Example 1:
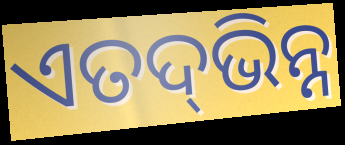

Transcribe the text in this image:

ଏତଦ୍‍ଭିନ୍ନ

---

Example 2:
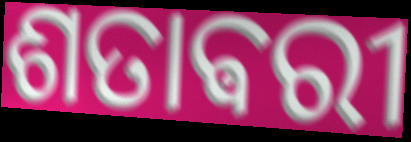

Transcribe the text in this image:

ଶତାଵରୀ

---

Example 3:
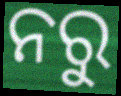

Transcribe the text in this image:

ନରୁ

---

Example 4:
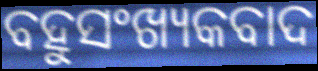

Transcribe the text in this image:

ବହୁସଂଖ୍ୟକବାଦ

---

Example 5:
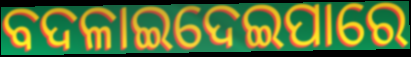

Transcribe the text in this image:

ବଦଳାଇଦେଇପାରେ